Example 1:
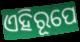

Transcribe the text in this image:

ଏହିରୂପେ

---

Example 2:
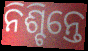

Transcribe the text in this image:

ନିଶ୍ଚିନ୍ତେ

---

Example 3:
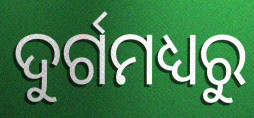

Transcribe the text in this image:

ଦୁର୍ଗମଧ୍ୟରୁ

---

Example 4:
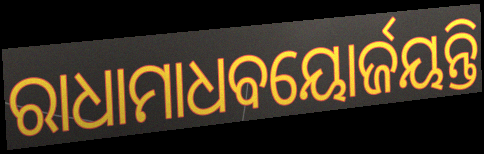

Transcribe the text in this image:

ରାଧାମାଧବୟୋର୍ଜୟନ୍ତି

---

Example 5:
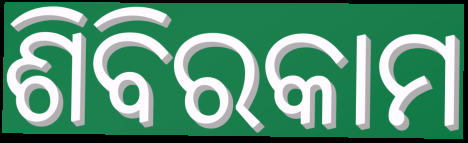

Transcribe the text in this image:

ଶିବିରକାମ